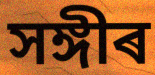
সঙ্গীৰ